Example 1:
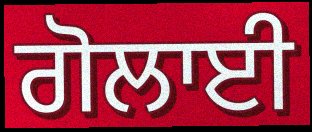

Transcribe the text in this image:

ਗੋਲਾਈ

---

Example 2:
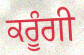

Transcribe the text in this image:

ਕਰੂੰਗੀ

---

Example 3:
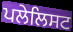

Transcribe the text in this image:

ਪਲੇਲਿਸਟ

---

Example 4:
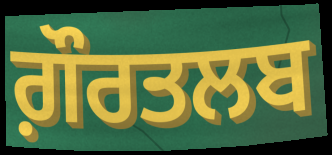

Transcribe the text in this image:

ਗ਼ੌਰਤਲਬ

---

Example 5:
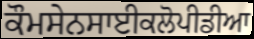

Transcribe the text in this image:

ਕੌਮਸੇਨਸਾਈਕਲੋਪੀਡੀਆ